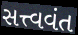
સત્ત્વવંત